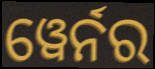
ୱେର୍ନର